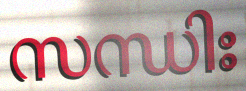
സന്ധിഃ